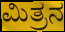
ಮಿತ್ರನ